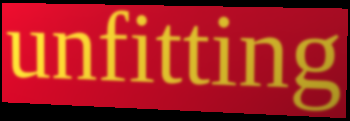
unfitting